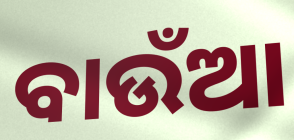
ବାଉଁଆ